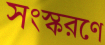
সংস্করণে